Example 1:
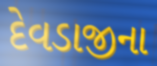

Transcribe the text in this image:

દેવડાજીના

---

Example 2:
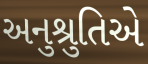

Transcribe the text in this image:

અનુશ્રુતિએ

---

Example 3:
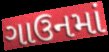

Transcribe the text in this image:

ગાઉનમાં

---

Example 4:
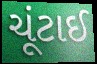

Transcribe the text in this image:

ચૂંટાઈ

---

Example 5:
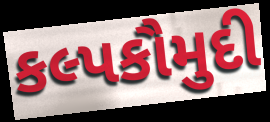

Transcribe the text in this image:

કલ્પકૌમુદી